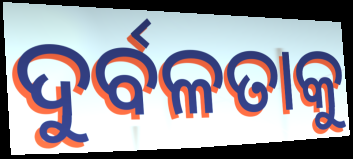
ଦୁର୍ବଳତାକୁ